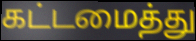
கட்டமைத்து